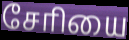
சேரியை